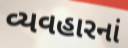
વ્યવહારનાં